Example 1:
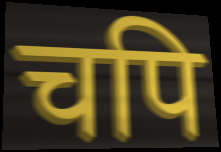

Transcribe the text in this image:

चपि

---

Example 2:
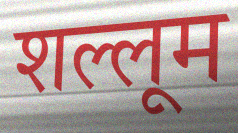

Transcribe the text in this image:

शल्लूम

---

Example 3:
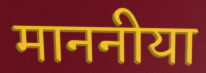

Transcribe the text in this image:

माननीया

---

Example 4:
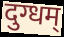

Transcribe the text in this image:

दुग्धम्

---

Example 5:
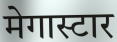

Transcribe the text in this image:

मेगास्टार